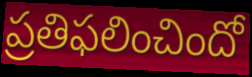
ప్రతిఫలించిందో